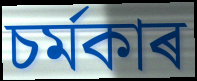
চৰ্মকাৰ